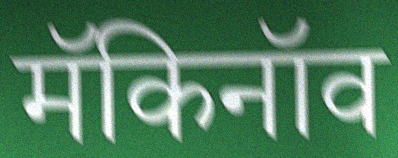
मॅकिनॉव